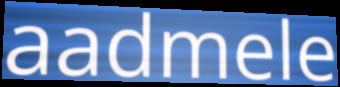
aadmele